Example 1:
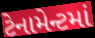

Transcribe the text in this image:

ટેનામેન્ટમાં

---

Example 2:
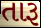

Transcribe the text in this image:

તારૂ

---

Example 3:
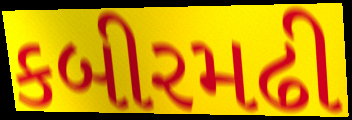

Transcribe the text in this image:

કબીરમઢી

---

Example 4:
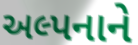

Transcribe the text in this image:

અલ્પનાને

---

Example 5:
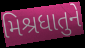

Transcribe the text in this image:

મિશ્રધાતુને